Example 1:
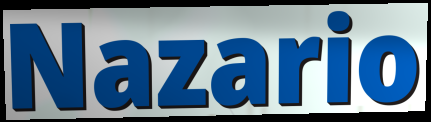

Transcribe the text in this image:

Nazario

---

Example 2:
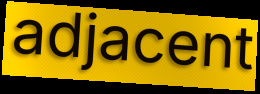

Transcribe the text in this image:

adjacent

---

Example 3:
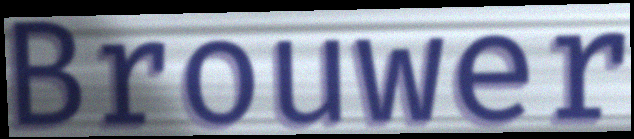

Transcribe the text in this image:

Brouwer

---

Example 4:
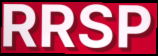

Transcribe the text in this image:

RRSP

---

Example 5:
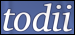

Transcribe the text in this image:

todii